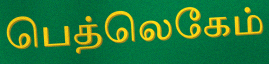
பெத்லெகேம்